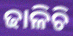
ଢାଳିଚି